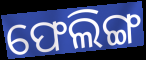
ଫେଲିଙ୍ଗ